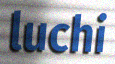
luchi